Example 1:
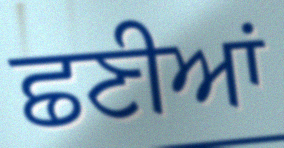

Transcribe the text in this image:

ਛਣੀਆਂ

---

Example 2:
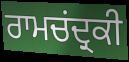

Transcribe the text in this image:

ਰਾਮਚਂਦ੍ਰਕੀ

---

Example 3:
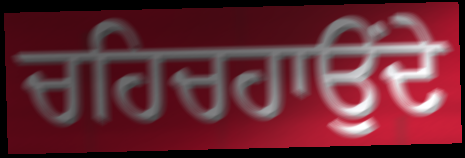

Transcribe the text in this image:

ਚਹਿਚਹਾਉਂਦੇ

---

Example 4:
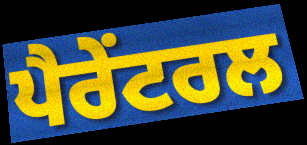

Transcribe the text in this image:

ਪੈਰੇਂਟਰਲ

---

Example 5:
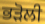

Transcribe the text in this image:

ਭੜੋਲੀ